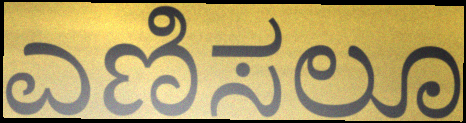
ಎಣಿಸಲೂ